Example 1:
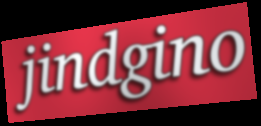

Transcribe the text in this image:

jindgino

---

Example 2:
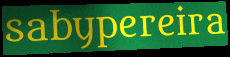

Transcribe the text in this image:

sabypereira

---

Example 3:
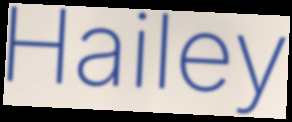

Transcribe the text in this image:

Hailey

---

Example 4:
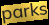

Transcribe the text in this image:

parks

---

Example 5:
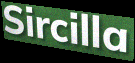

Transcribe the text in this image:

Sircilla